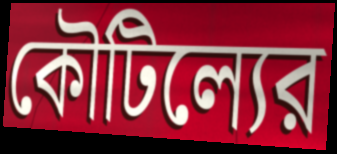
কৌটিল্যের